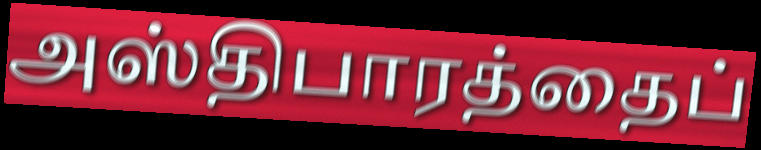
அஸ்திபாரத்தைப்